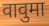
वावुमा